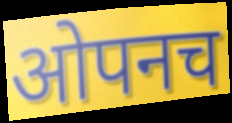
ओपनच